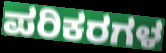
ಪರಿಕರಗಳ